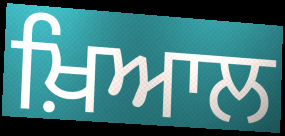
ਖ਼ਿਆਲ